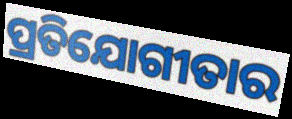
ପ୍ରତିଯୋଗୀତାର